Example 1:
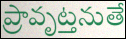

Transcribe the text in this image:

ప్రావృట్తనుతే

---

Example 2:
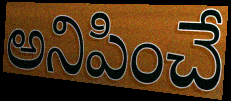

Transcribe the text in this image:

అనిపించే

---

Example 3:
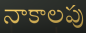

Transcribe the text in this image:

నాకాలపు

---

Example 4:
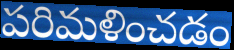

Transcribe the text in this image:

పరిమళించడం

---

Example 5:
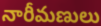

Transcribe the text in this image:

నారీమణులు